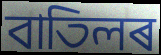
বাতিলৰ